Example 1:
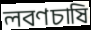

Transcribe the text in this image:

লবণচাষি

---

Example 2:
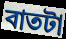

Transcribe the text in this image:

বাতটা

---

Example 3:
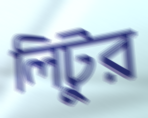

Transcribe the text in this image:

লিটুর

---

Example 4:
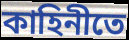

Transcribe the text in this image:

কাহিনীতে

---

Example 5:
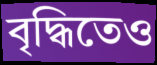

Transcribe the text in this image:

বৃদ্ধিতেও